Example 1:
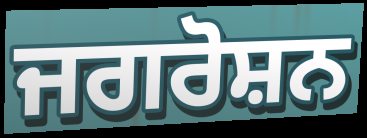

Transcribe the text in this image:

ਜਗਰੋਸ਼ਨ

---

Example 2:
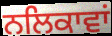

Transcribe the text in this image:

ਨਲਿਕਾਵਾਂ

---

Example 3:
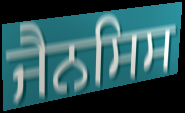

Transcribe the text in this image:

ਜੈਨਸਿਸ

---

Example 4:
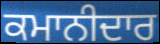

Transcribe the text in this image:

ਕਮਾਨੀਦਾਰ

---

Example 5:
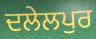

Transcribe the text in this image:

ਦਲੇਲਪੁਰ